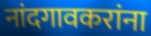
नांदगावकरांना